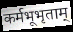
कर्मभूभृताम्